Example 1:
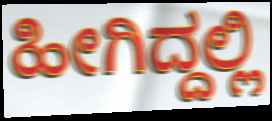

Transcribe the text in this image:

ಹೀಗಿದ್ದಲ್ಲಿ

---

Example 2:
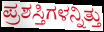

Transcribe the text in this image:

ಪ್ರಶಸ್ತಿಗಳನ್ನಿತ್ತು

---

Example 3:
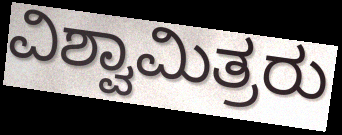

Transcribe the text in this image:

ವಿಶ್ವಾಮಿತ್ರರು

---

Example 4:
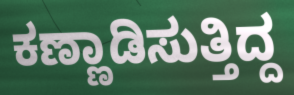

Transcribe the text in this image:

ಕಣ್ಣಾಡಿಸುತ್ತಿದ್ದ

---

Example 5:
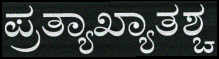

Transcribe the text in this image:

ಪ್ರತ್ಯಾಖ್ಯಾತಶ್ಚ